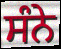
ਸੰਨੇ